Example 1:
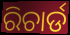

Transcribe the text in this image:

ରିଚାର୍ଡ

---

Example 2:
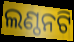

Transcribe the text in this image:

ଲଣ୍ଠନଟି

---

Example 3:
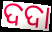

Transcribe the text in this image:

ଦଦା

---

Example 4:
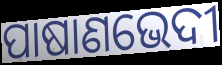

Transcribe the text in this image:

ପାଷାଣଭେଦୀ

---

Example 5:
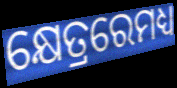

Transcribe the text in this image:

କ୍ଷେତ୍ରରେମଧ୍ୟ